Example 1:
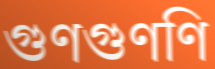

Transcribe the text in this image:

গুণগুণণি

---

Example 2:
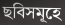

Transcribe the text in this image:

ছবিসমূহে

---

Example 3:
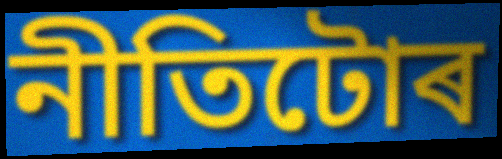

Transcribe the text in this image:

নীতিটোৰ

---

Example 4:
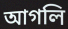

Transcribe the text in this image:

আগলি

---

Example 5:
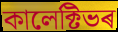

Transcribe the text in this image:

কালেক্টিভৰ